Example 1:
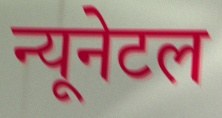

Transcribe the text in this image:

न्यूनेटल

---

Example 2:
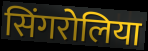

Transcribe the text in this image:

सिंगरोलिया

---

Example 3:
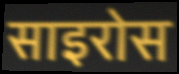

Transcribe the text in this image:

साइरोस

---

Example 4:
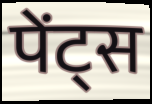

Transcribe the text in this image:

पेंट्स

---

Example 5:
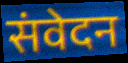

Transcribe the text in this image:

संवेदन